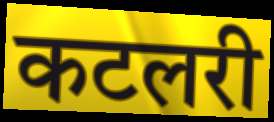
कटलरी